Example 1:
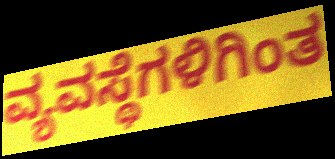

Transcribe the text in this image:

ವ್ಯವಸ್ಥೆಗಳಿಗಿಂತ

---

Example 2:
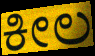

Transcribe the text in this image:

ಕೀಲ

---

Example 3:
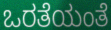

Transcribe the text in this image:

ಒರತೆಯಂತೆ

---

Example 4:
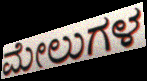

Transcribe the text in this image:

ಮೇಲುಗಳ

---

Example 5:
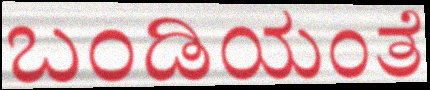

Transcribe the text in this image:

ಬಂಡಿಯಂತೆ